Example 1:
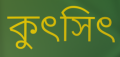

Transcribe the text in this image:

কুৎসিৎ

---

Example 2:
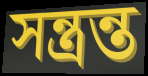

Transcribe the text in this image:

সন্ত্রন্ত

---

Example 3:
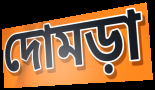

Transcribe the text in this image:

দোমড়া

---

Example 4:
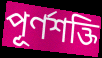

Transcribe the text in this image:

পূর্ণশক্তি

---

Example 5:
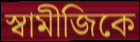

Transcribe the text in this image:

স্বামীজিকে